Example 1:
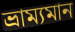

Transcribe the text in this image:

ভ্রাম্যমান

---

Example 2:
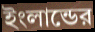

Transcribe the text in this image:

ইংলান্ডের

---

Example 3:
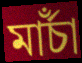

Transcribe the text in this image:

মার্চাঁ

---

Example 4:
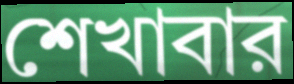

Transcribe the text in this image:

শেখাবার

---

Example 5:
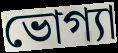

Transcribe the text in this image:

ভোগ্যা